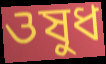
ওষুধ